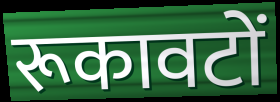
रूकावटों